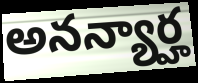
అనన్యార్హ